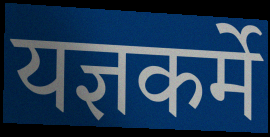
यज्ञकर्मे